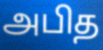
அபித